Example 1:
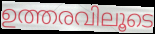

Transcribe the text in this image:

ഉത്തരവിലൂടെ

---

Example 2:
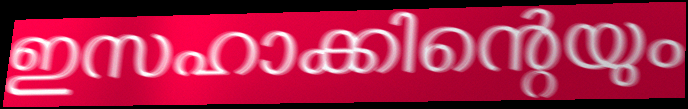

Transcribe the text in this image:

ഇസഹാക്കിന്റെയും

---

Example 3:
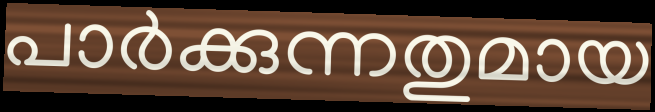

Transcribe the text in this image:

പാർക്കുന്നതുമായ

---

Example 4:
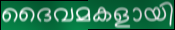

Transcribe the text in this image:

ദൈവമകളായി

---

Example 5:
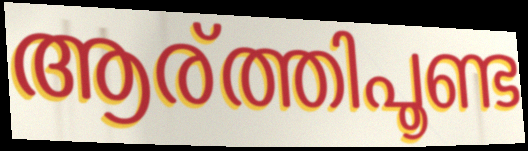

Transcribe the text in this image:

ആര്ത്തിപൂണ്ട